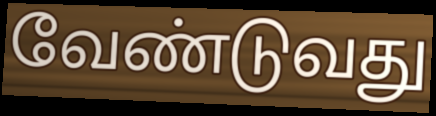
வேண்டுவது